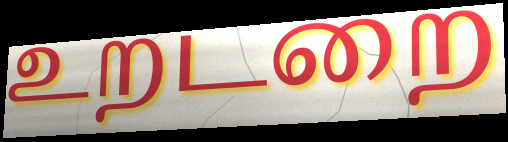
உறடறை